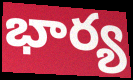
భార్య